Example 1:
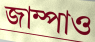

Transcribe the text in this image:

জাম্পাও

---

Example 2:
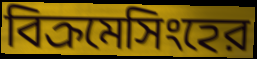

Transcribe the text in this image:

বিক্রমেসিংহের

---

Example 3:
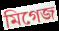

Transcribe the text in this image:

মিগেজ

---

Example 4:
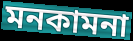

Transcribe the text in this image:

মনকামনা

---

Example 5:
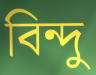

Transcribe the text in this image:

বিন্দু